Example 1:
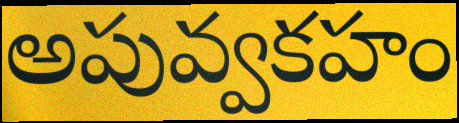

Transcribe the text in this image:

అపువ్వకహం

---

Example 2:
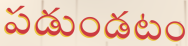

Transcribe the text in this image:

పడుండటం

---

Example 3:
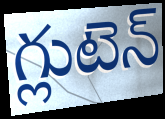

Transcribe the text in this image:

గ్లుటెన్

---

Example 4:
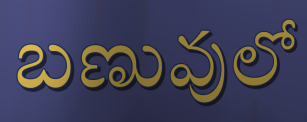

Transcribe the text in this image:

బణువులో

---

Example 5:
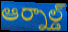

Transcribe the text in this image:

ఆర్నాల్డ్